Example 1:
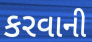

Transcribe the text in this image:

કરવાની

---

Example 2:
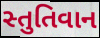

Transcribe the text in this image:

સ્તુતિવાન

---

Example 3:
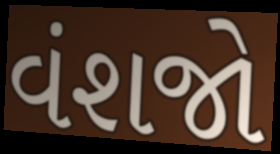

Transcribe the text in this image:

વંશજો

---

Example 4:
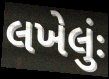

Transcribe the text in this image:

લખેલુંઃ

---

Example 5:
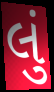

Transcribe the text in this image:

લું